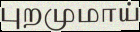
புறமுமாய்